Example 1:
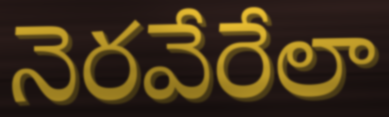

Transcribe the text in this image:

నెరవేరేలా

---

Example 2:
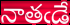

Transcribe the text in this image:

నాతఁడే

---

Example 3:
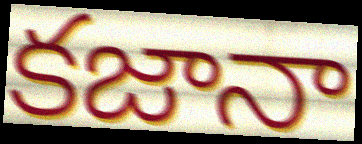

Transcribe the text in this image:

కజానా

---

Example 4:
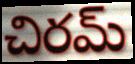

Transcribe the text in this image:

చిరమ్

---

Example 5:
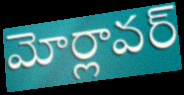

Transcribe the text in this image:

మోర్లావర్